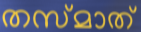
തസ്മാത്